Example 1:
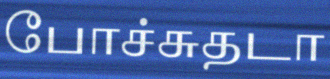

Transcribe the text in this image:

போச்சுதடா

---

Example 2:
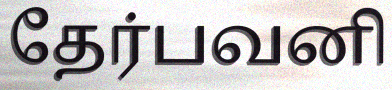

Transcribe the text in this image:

தேர்பவனி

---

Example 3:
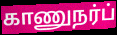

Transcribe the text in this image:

காணுநர்ப்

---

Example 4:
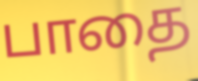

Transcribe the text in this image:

பாதை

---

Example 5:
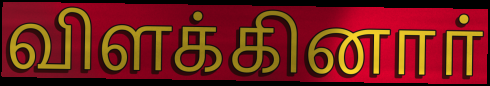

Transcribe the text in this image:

விளக்கினார்